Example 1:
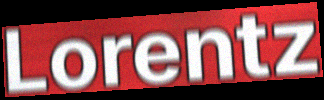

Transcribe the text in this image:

Lorentz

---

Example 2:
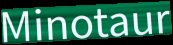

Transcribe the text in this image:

Minotaur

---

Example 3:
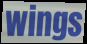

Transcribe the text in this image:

wings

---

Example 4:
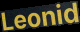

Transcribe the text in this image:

Leonid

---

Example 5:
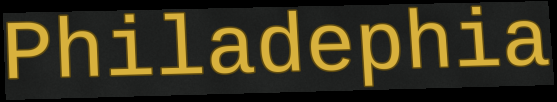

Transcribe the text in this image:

Philadephia